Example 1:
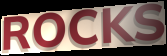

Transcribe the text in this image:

ROCKS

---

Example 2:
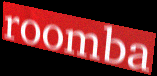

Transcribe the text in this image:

roomba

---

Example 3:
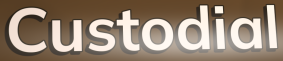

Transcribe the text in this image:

Custodial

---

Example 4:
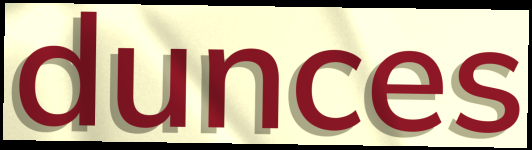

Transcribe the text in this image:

dunces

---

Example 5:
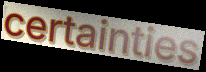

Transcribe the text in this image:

certainties